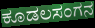
ಕೂಡಲಸಂಗನ